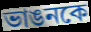
ভাঙনকে